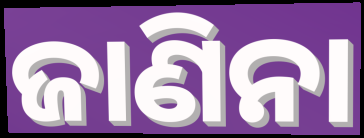
ଜାଣିନା